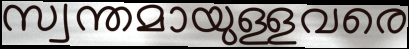
സ്വന്തമായുള്ളവരെ